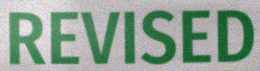
REVISED